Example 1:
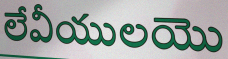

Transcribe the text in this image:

లేవీయులయొ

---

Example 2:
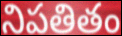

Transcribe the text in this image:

నిపతితం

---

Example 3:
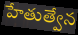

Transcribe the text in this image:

హేతుత్వేన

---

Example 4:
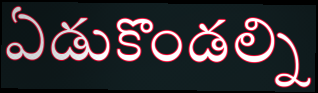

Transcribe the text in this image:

ఏడుకొండల్ని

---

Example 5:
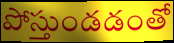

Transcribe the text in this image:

పోస్తుండడంతో